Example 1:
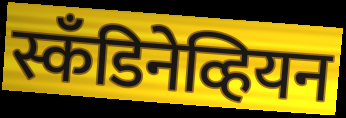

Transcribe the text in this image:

स्कँडिनेव्हियन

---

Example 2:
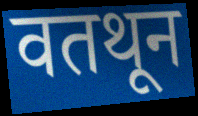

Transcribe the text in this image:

वतथून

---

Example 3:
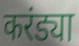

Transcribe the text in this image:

करंड्या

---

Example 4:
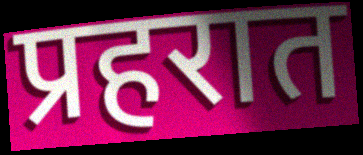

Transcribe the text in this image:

प्रहरात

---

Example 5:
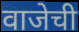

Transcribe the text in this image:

वाजेची